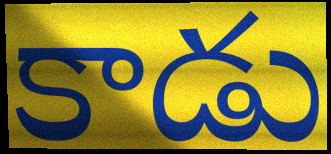
కాడు